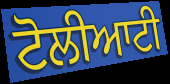
ਟੋਲੀਆਟੀ